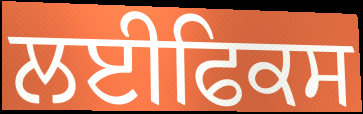
ਲਈਫਿਕਸ